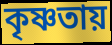
কৃষ্ণতায়